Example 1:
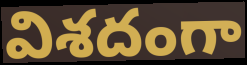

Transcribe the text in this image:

విశదంగా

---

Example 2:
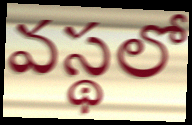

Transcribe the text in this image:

వస్థలో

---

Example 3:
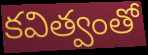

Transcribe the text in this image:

కవిత్వంతో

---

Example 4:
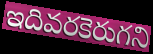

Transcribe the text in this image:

ఇదివరకెరుగని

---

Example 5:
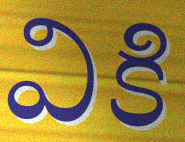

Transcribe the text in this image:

వికి